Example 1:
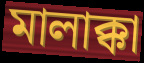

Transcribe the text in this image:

মালাক্কা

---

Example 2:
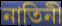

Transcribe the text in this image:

নাতিনী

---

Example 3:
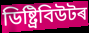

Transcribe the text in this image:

ডিষ্ট্ৰিবিউটৰ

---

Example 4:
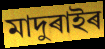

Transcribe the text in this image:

মাদুৰাইৰ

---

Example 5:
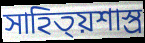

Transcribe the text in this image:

সাহিত্য়শাস্ত্ৰ